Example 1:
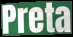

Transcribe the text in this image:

Preta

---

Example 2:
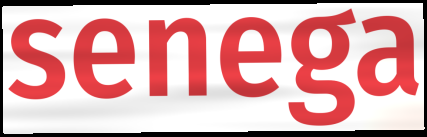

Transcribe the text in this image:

senega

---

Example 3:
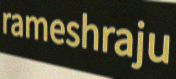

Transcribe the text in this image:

rameshraju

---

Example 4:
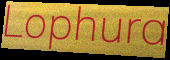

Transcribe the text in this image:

Lophura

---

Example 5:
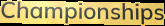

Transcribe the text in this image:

Championships